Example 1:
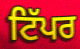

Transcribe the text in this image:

ਟਿੱਪਰ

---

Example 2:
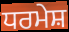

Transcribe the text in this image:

ਧਰਮੇਸ਼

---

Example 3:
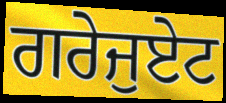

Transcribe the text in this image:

ਗਰੇਜੁਏਟ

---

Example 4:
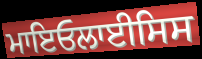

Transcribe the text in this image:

ਮਾਇਓਲਾਈਸਿਸ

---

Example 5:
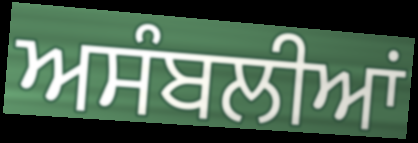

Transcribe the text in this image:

ਅਸੰਬਲੀਆਂ